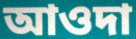
আওদা